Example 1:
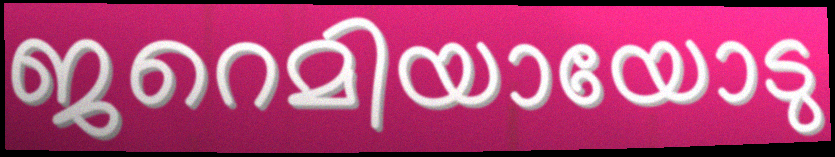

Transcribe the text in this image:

ജറെമിയായോടു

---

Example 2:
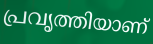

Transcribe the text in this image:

പ്രവൃത്തിയാണ്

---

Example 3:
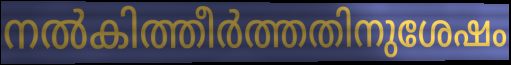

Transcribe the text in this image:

നൽകിത്തീർത്തതിനുശേഷം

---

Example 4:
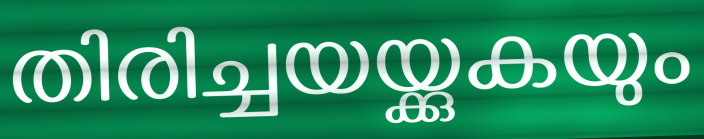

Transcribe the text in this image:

തിരിച്ചയയ്ക്കുകയും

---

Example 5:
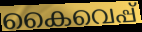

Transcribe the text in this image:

കൈവെപ്പ്